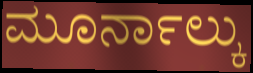
ಮೂರ್ನಾಲ್ಕು